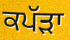
ਕਪੱੜਾ